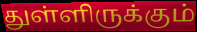
துள்ளிருக்கும்